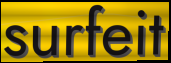
surfeit